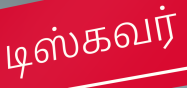
டிஸ்கவர்